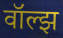
वॉल्झ